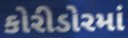
કોરીડોરમાં